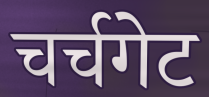
चर्चगेट